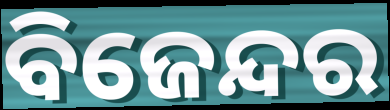
ବିଜେନ୍ଦର